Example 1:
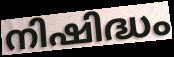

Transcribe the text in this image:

നിഷിദ്ധം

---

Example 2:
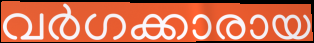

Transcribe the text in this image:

വർഗക്കാരായ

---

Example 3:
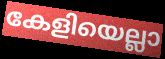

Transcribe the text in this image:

കേളിയെല്ലാ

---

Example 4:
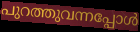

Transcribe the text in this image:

പുറത്തുവന്നപ്പോൾ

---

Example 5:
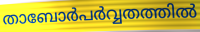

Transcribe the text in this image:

താബോർപർവ്വതത്തിൽ